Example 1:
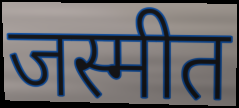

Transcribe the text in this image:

जस्मीत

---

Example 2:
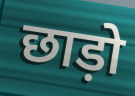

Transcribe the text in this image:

छाड़ो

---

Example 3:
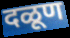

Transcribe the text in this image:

दळूण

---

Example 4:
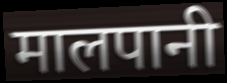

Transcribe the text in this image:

मालपानी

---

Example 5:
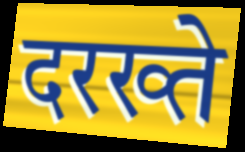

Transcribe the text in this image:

दरख्ते